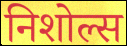
निशोल्स